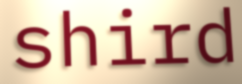
shird